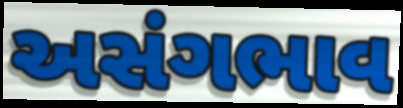
અસંગભાવ